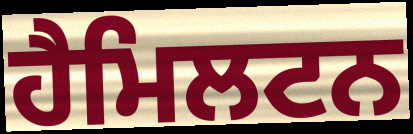
ਹੈਮਿਲਟਨ